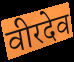
वीरदेव